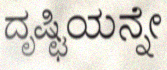
ದೃಷ್ಟಿಯನ್ನೇ